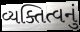
વ્યક્તિત્વનું